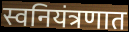
स्वनियंत्रणात